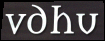
vdhu